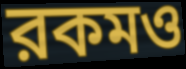
রকমও